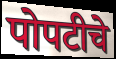
पोपटीचे